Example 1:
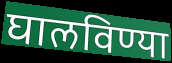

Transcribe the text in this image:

घालविण्या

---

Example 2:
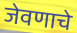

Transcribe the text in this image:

जेवणाचे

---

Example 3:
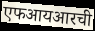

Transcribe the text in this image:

एफआयआरची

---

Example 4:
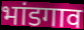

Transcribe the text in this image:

भांडगाव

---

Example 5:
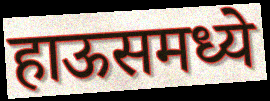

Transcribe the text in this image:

हाऊसमध्ये